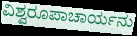
ವಿಶ್ವರೂಪಾಚಾರ್ಯನು